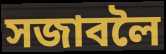
সজাবলৈ